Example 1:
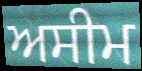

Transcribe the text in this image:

ਅਸੀਮ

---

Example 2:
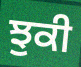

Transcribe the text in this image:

ਝੁਕੀ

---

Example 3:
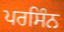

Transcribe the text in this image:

ਪਰਸਿੰਨ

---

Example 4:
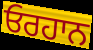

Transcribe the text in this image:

ਓਰਹਾਨ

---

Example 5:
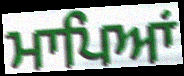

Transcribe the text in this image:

ਮਾਪਿਆਂ